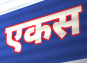
एकस